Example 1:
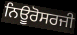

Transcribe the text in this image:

ਨਿਊਰੋਸਰਜੀ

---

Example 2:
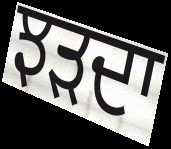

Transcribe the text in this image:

ਝੜਦਾ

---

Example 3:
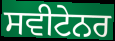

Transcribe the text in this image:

ਸਵੀਟੇਨਰ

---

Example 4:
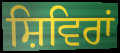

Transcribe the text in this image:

ਸ਼ਿਵਿਰਾਂ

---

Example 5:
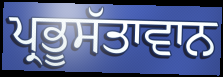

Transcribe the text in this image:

ਪ੍ਰਭੂਸੱਤਾਵਾਨ